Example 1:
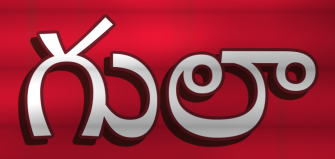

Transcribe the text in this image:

గులా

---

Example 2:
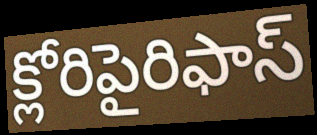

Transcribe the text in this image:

క్లోరిపైరిఫాస్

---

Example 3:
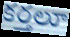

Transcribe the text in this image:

కర్తలూ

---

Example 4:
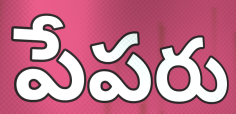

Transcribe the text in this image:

పేపరు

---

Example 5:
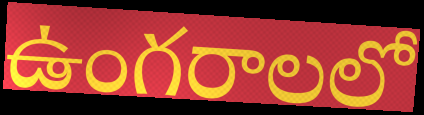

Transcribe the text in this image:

ఉంగరాలలో